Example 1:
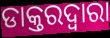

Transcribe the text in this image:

ଡାକ୍ତରଦ୍ୱାରା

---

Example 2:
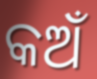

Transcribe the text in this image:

କଅଁ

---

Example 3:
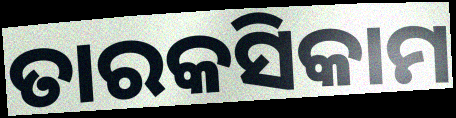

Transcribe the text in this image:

ତାରକସିକାମ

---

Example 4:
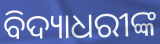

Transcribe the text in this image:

ବିଦ୍ୟାଧରୀଙ୍କ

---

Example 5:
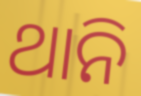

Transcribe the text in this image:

ଥାନି